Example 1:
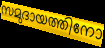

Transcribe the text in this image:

സമുദായത്തിനോ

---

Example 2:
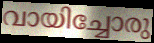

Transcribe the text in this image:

വായിച്ചോരു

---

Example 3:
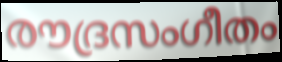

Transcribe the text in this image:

രൗദ്രസംഗീതം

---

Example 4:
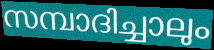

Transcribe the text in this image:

സമ്പാദിച്ചാലും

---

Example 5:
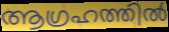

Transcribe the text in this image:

ആഗ്രഹത്തിൽ